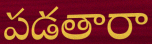
పడతారా